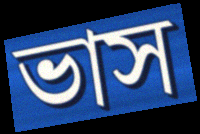
ভাস